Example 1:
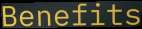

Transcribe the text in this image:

Benefits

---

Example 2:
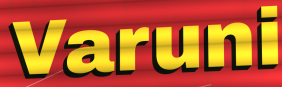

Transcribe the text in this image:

Varuni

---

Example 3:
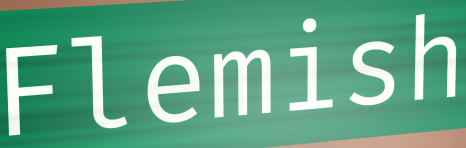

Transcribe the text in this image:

Flemish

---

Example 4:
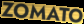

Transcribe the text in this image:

ZOMATO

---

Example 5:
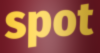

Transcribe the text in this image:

spot